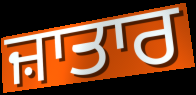
ਜ਼ਾਤਾਰ